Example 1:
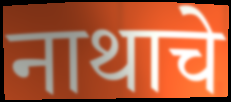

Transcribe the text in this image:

नाथाचे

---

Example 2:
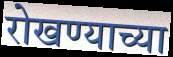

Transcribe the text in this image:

रोखण्याच्या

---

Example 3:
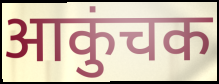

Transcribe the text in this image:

आकुंचक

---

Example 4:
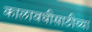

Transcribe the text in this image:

कालावधीसाठीच्या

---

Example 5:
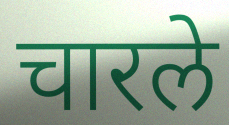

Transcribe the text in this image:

चारले